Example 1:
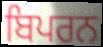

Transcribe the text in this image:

ਬਿਪਰਨ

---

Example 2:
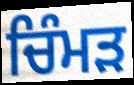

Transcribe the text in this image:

ਚਿੰਮੜ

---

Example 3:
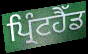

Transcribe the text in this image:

ਪ੍ਰਿੰਟਹੈੱਡ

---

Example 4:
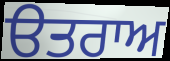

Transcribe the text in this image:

ੳਤਰਾਅ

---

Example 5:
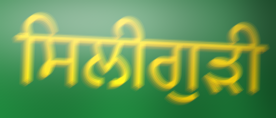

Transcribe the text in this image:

ਸਿਲੀਗੁੜੀ